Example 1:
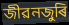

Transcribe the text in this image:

জীৱনজুৰি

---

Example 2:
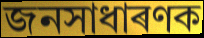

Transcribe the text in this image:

জনসাধাৰণক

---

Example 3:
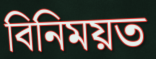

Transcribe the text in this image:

বিনিময়ত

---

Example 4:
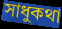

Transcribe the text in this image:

সাধুকথা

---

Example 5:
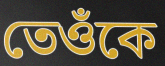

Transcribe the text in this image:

তেওঁকে